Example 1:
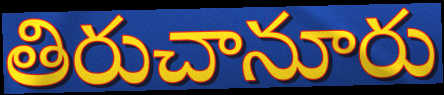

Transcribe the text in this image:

తిరుచానూరు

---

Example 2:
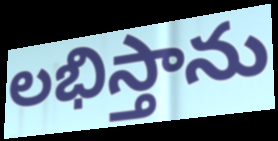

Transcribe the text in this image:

లభిస్తాను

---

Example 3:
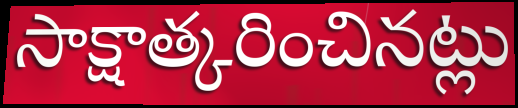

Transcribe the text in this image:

సాక్షాత్కరించినట్లు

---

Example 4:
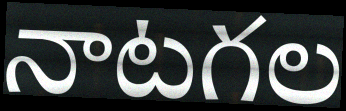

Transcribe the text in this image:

నాటగల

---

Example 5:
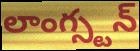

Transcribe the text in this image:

లాంగ్స్టన్